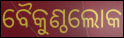
ବୈକୁଣ୍ଠଲୋକ